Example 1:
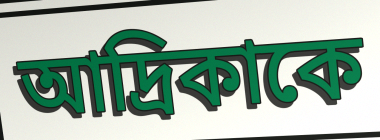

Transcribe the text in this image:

আদ্রিকাকে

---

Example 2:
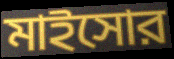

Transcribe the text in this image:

মাইসোর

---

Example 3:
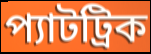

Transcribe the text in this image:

প্যাটট্রিক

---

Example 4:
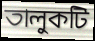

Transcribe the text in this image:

তালুকটি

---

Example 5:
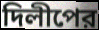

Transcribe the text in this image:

দিলীপের